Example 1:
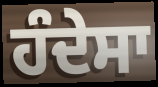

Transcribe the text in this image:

ਹੰਦੇਸਾ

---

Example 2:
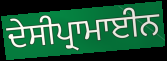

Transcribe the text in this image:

ਦੇਸੀਪ੍ਰਾਮਾਈਨ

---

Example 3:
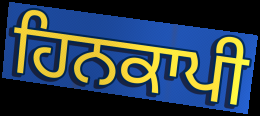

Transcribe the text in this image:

ਹਿਨਕਾਪੀ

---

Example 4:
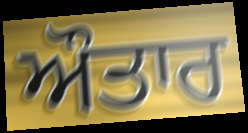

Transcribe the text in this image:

ਔਤਾਰ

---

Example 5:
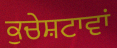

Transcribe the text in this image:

ਕੁਚੇਸ਼ਟਾਵਾਂ